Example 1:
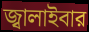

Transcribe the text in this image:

জ্বালাইবার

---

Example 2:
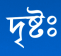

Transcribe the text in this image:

দৃষ্টঃ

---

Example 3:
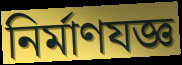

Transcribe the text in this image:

নির্মাণযজ্ঞ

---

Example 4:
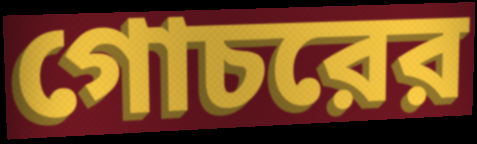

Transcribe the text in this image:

গোচরের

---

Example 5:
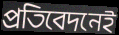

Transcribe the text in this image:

প্রতিবেদনেই